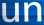
un